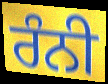
ਰੰਨੀ